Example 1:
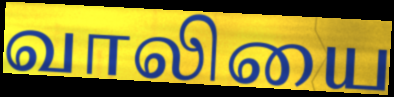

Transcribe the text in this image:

வாலியை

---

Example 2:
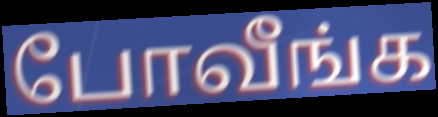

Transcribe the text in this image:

போவீங்க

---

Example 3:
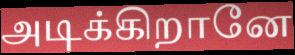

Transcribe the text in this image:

அடிக்கிறானே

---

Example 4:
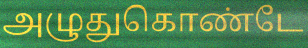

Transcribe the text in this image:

அழுதுகொண்டே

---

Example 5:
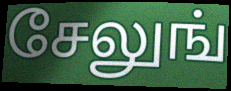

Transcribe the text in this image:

சேலுங்